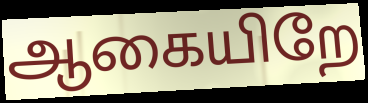
ஆகையிறே